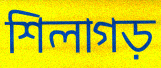
শিলাগড়